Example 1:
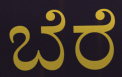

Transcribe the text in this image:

ಬೆರೆ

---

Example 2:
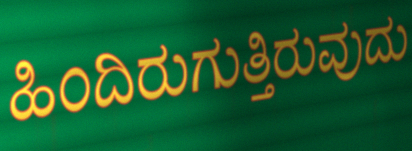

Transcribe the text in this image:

ಹಿಂದಿರುಗುತ್ತಿರುವುದು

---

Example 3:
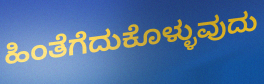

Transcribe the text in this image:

ಹಿಂತೆಗೆದುಕೊಳ್ಳುವುದು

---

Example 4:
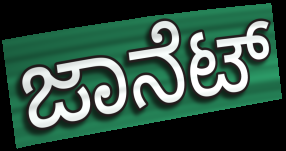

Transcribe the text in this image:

ಜಾನೆಟ್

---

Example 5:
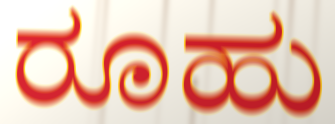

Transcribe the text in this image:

ರೂಹು